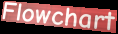
Flowchart